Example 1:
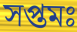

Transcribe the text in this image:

সপ্তমঃ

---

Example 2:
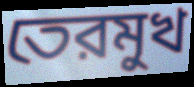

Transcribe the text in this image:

তেরমুখ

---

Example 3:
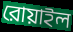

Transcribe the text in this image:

রোয়াইল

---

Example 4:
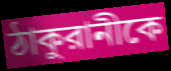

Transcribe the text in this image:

ঠাকুরানীকে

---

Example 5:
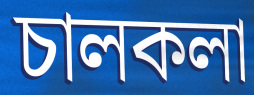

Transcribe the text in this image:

চালকলা